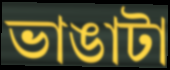
ভাঙাটা